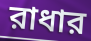
রাধার